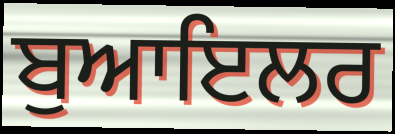
ਬੁਆਇਲਰ